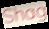
Shag